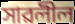
সাৱলীল